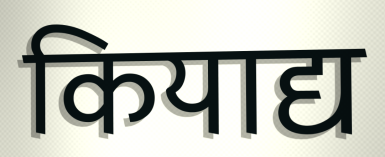
कियाद्य